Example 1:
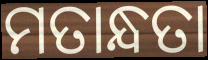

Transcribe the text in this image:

ମତାନ୍ଧତା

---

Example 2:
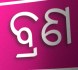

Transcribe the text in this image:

ବ୍ରଣ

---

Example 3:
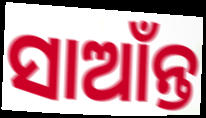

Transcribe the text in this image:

ସାଆଁନ୍ତ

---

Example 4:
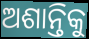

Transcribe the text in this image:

ଅଶାନ୍ତିକୁ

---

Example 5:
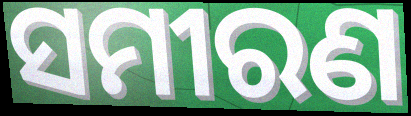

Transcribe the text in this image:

ସମୀରଣ